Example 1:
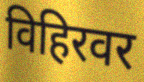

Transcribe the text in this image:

विहिरवर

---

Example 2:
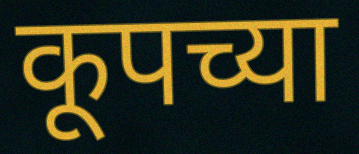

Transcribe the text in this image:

कूपच्या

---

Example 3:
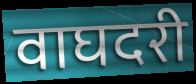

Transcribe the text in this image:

वाघदरी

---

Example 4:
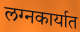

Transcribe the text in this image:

लग्नकार्यात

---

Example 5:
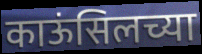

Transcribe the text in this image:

काऊंसिलच्या